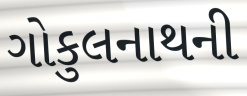
ગોકુલનાથની